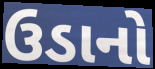
ઉડાનો